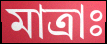
মাত্রাঃ